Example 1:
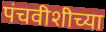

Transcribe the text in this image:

पंचवीशीच्या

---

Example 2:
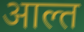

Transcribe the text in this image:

आल्त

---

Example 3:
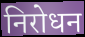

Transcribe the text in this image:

निरोधन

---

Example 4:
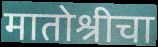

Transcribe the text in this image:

मातोश्रीचा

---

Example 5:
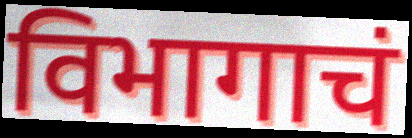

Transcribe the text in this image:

विभागाचं